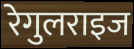
रेगुलराइज